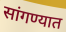
सांगण्यात